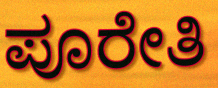
ಪೂರೇತಿ